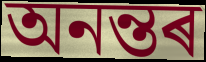
অনন্তৰ